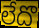
లేదొ